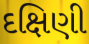
દક્ષિણી